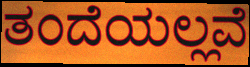
ತಂದೆಯಲ್ಲವೆ